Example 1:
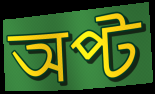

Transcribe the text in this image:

অপ্ট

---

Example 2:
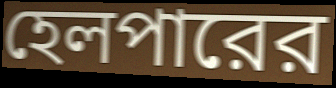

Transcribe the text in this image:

হেলপারের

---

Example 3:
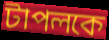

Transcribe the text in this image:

টাপলকে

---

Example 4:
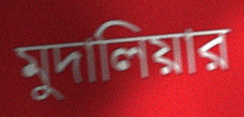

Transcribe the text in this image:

মুদালিয়ার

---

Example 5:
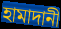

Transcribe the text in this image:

হামাদানী